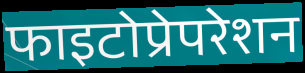
फाइटोप्रेपरेशन